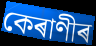
কেৰাণীৰ